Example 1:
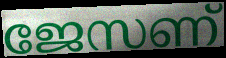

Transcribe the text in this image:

ജേസണ്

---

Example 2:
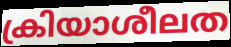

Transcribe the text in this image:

ക്രിയാശീലത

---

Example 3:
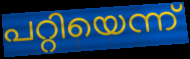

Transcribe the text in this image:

പറ്റിയെന്ന്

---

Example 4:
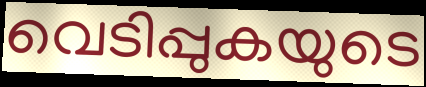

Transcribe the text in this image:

വെടിപ്പുകയുടെ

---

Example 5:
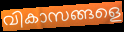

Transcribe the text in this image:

വികാസങ്ങളെ